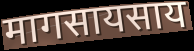
मागसायसाय